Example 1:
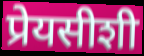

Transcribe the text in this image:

प्रेयसीशी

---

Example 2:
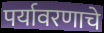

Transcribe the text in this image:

पर्यावरणाचे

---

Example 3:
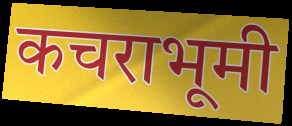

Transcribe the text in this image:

कचराभूमी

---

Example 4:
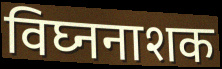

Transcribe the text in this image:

विघ्ननाशक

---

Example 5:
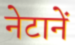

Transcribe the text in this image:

नेटानें